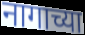
नागाच्या